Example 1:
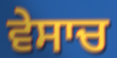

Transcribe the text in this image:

ਵੇਸਾਚ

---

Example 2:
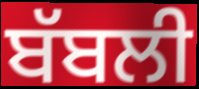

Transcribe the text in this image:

ਬੱਬਲੀ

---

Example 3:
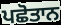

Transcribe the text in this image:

ਪਛੋਤਾਨ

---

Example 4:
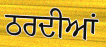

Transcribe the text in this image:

ਠਰਦੀਆਂ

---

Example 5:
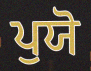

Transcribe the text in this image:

ਪੁਯੋ